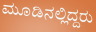
ಮೂಡಿನಲ್ಲಿದ್ದರು